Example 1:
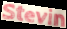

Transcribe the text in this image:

Stevin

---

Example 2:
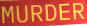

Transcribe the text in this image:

MURDER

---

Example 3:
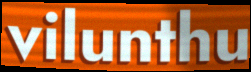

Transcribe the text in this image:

vilunthu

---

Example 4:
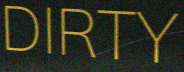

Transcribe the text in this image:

DIRTY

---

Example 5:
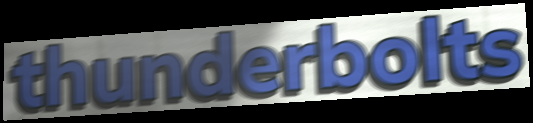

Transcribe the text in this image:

thunderbolts